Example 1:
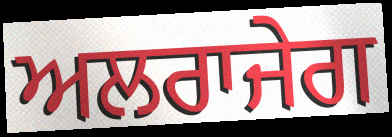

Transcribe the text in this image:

ਅਲਰਾਜੇਗ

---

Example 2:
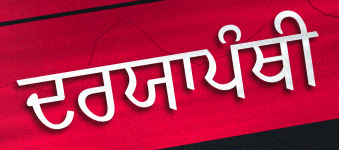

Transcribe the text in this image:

ਦਰਯਾਪੰਥੀ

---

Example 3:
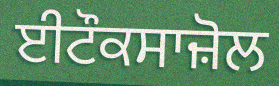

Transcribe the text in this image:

ਈਟੌਕਸਾਜ਼ੋਲ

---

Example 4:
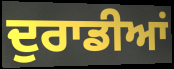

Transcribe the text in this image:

ਦੁਰਾਡੀਆਂ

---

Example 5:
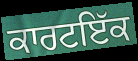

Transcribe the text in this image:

ਕਾਰਟਇੱਕ